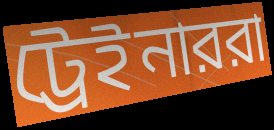
ট্রেইনাররা